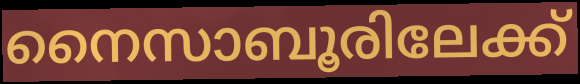
നൈസാബൂരിലേക്ക്